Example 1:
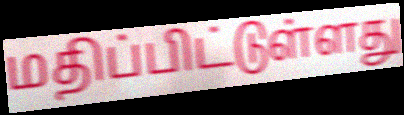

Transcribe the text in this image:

மதிப்பிட்டுள்ளது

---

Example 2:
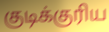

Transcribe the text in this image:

குடிக்குரிய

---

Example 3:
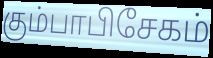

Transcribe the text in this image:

கும்பாபிசேகம்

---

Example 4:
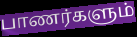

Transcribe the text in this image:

பாணர்களும்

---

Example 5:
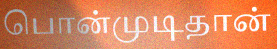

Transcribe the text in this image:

பொன்முடிதான்